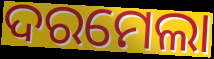
ଦରମେଲା